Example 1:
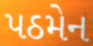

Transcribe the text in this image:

પઠમેન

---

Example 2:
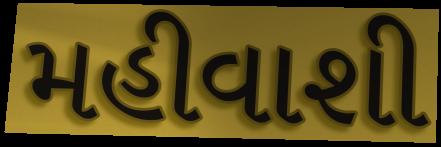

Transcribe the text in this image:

મહીવાશી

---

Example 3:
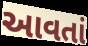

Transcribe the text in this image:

આવતાં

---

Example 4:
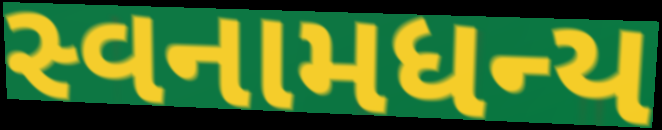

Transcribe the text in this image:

સ્વનામધન્ય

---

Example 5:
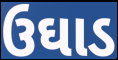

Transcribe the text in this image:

ઉઘાડ